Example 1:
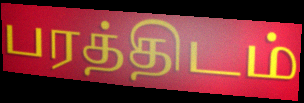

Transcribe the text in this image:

பரத்திடம்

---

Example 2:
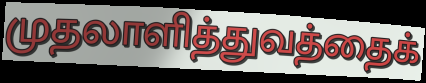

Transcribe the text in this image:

முதலாளித்துவத்தைக்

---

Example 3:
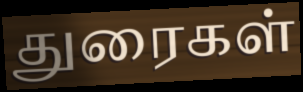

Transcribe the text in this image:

துரைகள்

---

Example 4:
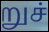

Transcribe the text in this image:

றுச்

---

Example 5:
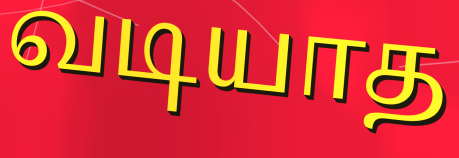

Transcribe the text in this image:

வடியாத